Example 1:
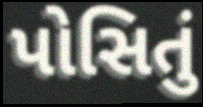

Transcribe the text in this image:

પોસિતું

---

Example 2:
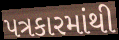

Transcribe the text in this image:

પત્રકારમાંથી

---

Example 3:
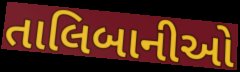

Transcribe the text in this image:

તાલિબાનીઓ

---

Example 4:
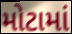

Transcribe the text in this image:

મોટામાં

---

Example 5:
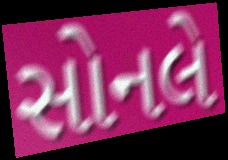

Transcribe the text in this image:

સોનલે